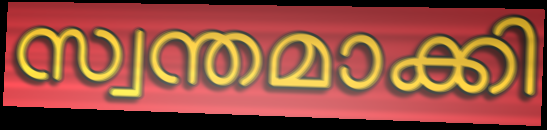
സ്വന്തമാക്കി